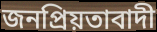
জনপ্ৰিয়তাবাদী